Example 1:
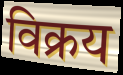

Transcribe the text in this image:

विक्रय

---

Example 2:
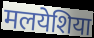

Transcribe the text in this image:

मलयेशिया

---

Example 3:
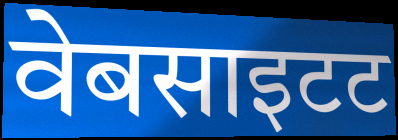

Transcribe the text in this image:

वेबसाइटट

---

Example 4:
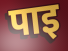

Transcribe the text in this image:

पाइ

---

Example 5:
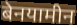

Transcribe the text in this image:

बेनयामीन